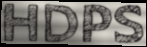
HDPS